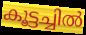
കൂട്ടച്ചിൽ